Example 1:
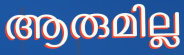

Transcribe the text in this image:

ആരുമില്ല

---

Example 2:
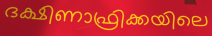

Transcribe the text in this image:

ദക്ഷിണാഫ്രിക്കയിലെ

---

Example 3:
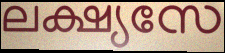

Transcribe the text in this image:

ലക്ഷ്യസേ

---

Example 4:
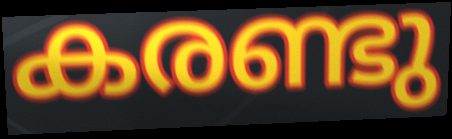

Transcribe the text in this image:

കരണ്ടു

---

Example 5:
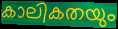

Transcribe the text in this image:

കാലികതയും